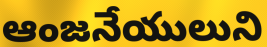
ఆంజనేయులుని